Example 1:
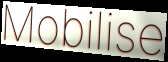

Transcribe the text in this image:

Mobilise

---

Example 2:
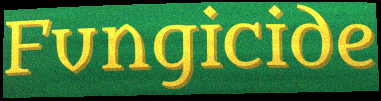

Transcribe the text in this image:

Fungicide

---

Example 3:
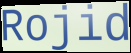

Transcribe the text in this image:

Rojid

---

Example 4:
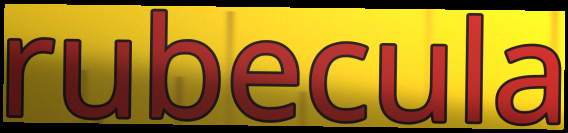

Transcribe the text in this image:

rubecula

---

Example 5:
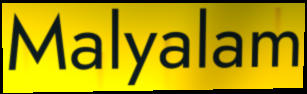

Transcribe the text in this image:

Malyalam